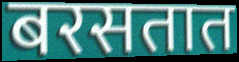
बरसतात